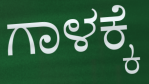
ಗಾಳಕ್ಕೆ